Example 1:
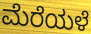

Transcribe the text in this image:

ಮೆರೆಯಳೆ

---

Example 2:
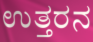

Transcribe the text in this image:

ಉತ್ತರನ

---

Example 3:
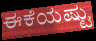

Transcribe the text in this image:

ಈಕೆಯಷ್ಟು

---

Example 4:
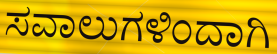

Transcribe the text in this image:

ಸವಾಲುಗಳಿಂದಾಗಿ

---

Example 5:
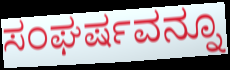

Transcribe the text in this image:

ಸಂಘರ್ಷವನ್ನೂ